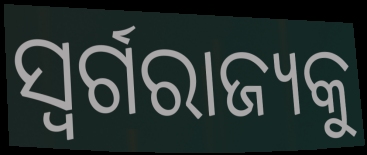
ସ୍ଵର୍ଗରାଜ୍ୟକୁ